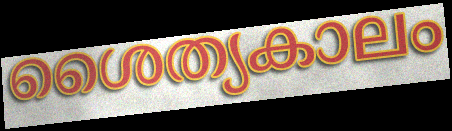
ശൈത്യകാലം